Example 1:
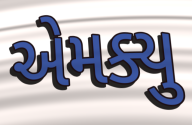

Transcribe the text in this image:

એમક્યુ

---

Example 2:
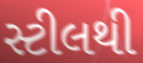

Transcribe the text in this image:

સ્ટીલથી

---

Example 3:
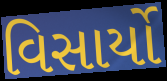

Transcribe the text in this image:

વિસાર્યો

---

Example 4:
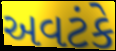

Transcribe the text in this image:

અવટંકે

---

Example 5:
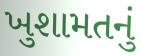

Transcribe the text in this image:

ખુશામતનું